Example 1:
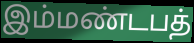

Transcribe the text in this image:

இம்மண்டபத்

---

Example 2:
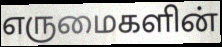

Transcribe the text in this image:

எருமைகளின்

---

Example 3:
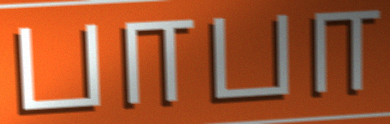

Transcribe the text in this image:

பாபா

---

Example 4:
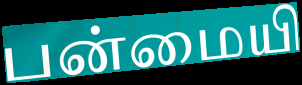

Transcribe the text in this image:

பன்மையி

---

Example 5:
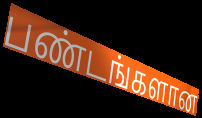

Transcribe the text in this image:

பண்டங்களான